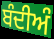
ਬੰਦੀਅੰ